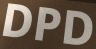
DPD